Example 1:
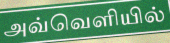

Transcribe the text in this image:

அவ்வெளியில்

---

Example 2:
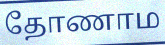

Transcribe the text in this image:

தோணாம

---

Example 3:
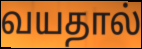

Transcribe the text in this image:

வயதால்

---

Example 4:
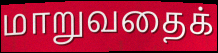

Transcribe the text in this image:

மாறுவதைக்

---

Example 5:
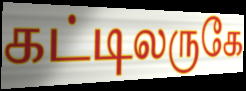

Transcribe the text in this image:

கட்டிலருகே